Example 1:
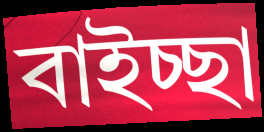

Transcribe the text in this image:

বাইচ্ছা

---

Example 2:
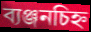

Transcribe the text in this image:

ব্যঞ্জনচিহ্ন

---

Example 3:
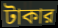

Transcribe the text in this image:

টাকার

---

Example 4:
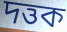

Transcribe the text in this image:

দত্তক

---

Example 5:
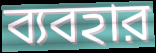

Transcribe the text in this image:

ব্যবহার